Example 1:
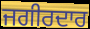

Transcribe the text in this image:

ਜਗੀਰਦਾਰ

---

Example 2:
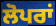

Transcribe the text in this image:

ਲੋਪਰਾਂ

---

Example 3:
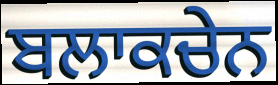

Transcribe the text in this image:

ਬਲਾਕਚੇਨ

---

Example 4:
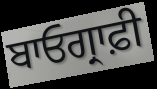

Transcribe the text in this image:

ਬਾਓਗ੍ਰਾਫ਼ੀ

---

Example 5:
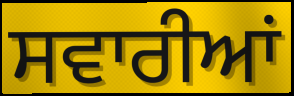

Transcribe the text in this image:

ਸਵਾਰੀਆਂ